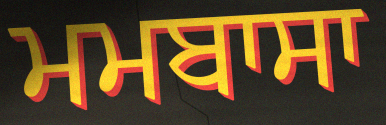
ਮਮਬਾਸਾ